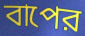
বাপের